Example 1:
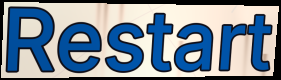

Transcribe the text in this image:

Restart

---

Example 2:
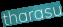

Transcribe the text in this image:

tharasu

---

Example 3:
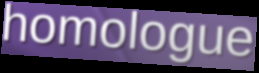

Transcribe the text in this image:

homologue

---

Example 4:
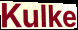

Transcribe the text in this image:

Kulke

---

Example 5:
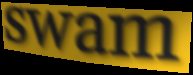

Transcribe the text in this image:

swam